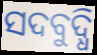
ସଦବୁଦ୍ଧି